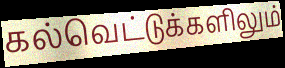
கல்வெட்டுக்களிலும்